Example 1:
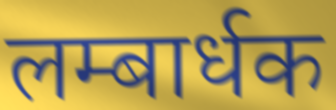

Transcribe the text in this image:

लम्बार्धक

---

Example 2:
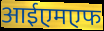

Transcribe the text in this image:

आईएमएफ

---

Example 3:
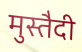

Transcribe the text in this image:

मुस्तैदी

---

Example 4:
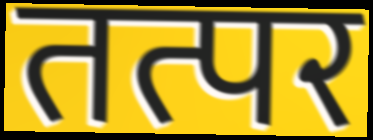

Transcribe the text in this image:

तत्पर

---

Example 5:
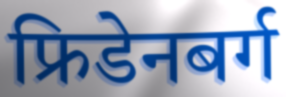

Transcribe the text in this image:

फ्रिडेनबर्ग